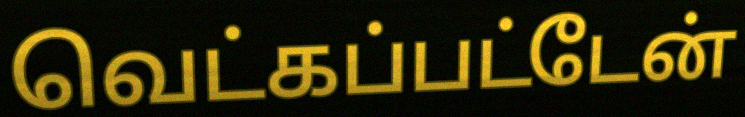
வெட்கப்பட்டேன்